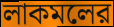
লাকমলের